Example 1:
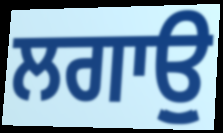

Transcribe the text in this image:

ਲਗਾਉੁ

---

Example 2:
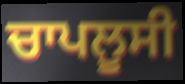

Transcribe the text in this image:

ਚਾਪਲੂਸੀ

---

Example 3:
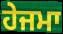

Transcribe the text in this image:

ਹੇਜਮਾ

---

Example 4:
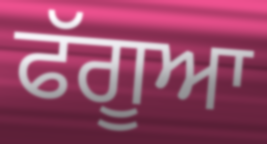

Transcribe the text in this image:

ਫੱਗੂਆ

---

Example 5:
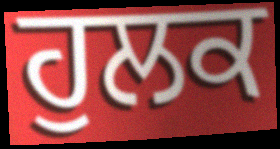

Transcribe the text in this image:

ਹੁਲਕ